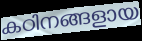
കഠിനങ്ങളായ